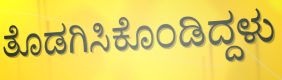
ತೊಡಗಿಸಿಕೊಂಡಿದ್ದಳು